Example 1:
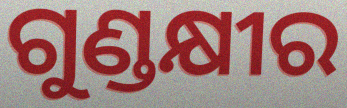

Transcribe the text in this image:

ଗୁଣ୍ଡକ୍ଷୀର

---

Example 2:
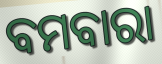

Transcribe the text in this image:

ବମବାରା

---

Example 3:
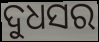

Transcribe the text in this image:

ଦୁଧସର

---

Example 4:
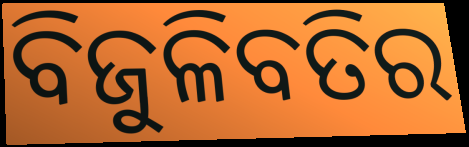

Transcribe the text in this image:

ବିଜୁଳିବତିର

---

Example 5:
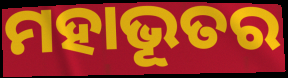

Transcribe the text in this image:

ମହାଭୂତର